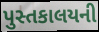
પુસ્તકાલયની